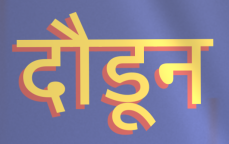
दौडून